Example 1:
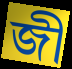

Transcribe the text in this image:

জী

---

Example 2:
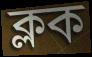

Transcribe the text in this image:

ক্লক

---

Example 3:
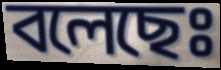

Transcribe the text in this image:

বলেছেঃ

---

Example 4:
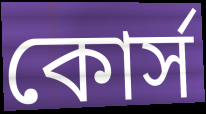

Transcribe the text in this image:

কোর্স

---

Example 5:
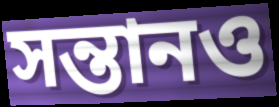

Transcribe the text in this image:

সন্তানও